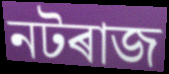
নটৰাজ